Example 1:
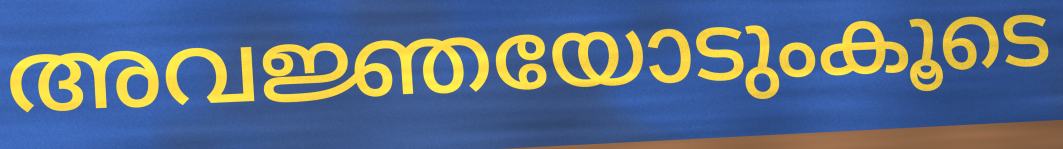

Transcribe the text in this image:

അവജ്ഞയോടുംകൂടെ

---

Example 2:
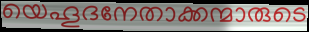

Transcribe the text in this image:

യെഹൂദനേതാക്കന്മാരുടെ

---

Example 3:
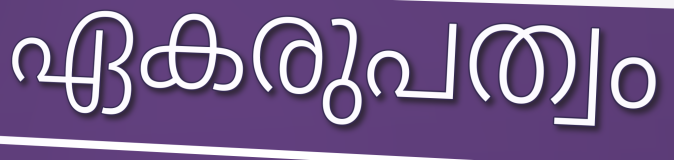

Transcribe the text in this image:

ഏകരുപത്വം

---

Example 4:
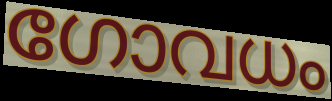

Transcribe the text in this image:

ഗോവധം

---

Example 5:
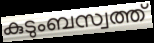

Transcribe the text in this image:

കുടുംബസ്വത്ത്